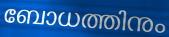
ബോധത്തിനും